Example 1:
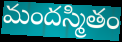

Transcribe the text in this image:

మందస్మితం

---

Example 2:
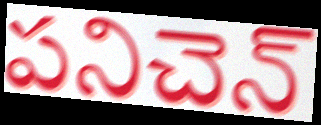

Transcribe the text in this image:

పనిచెన్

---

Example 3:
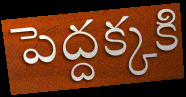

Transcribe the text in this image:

పెద్దక్కకి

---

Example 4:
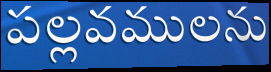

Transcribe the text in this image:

పల్లవములను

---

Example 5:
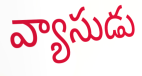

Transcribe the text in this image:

వ్యాసుడు